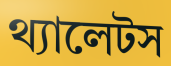
থ্যালেটস